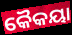
କୈକୟା